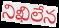
నిఖిలేన